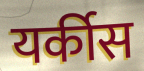
यर्कीस